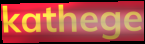
kathege